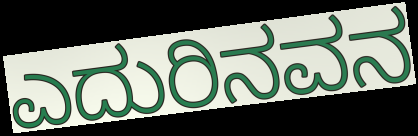
ಎದುರಿನವನ